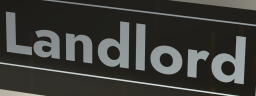
Landlord